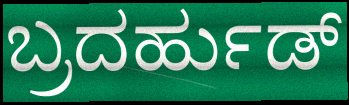
ಬ್ರದರ್ಹುಡ್